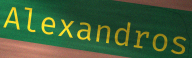
Alexandros